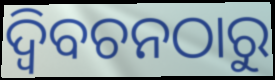
ଦ୍ବିବଚନଠାରୁ